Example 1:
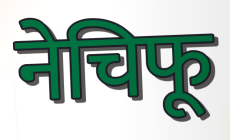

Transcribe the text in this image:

नेचिफू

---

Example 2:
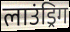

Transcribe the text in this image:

लाउंड्रिग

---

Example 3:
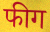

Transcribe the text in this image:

फीग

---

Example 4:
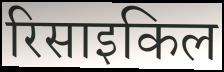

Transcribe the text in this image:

रिसाइकिल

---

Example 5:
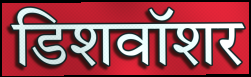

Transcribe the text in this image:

डिशवॉशर